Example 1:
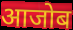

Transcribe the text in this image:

आजोब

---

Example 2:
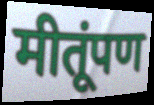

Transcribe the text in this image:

मीतूंपण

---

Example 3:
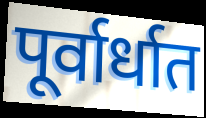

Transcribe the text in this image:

पूर्वार्धात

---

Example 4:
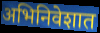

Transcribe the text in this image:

अभिनिवेशात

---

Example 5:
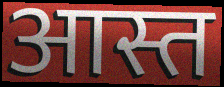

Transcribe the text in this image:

आस्त